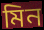
মিন